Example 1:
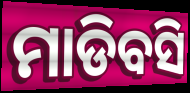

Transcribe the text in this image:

ମାଡିବସି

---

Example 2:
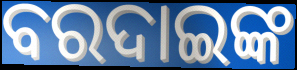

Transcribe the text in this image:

ବରଦାଇଙ୍କ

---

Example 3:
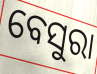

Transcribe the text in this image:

ବେସୁରା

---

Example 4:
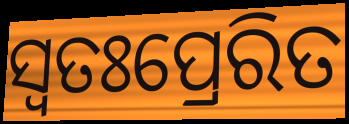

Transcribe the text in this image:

ସ୍ୱତଃପ୍ରେରିତ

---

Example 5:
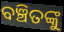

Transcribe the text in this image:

ବଞ୍ଚିତଙ୍କୁ